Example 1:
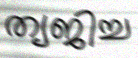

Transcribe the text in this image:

ത്യജിച്ച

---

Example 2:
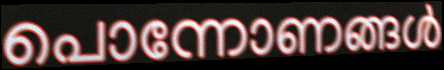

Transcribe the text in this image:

പൊന്നോണങ്ങൾ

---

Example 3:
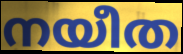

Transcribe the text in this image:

നയീത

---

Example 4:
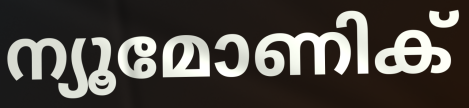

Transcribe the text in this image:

ന്യൂമോണിക്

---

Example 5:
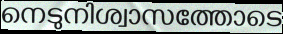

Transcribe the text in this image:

നെടുനിശ്വാസത്തോടെ